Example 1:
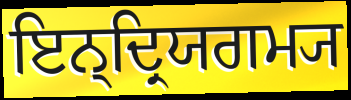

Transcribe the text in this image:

ਇਨ੍ਦ੍ਰਿਯਗਮ੍ਯ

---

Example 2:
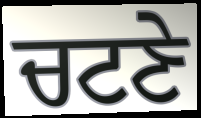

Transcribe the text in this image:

ਚਟਣੇ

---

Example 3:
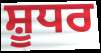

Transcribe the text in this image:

ਸ਼ੂਧਰ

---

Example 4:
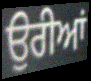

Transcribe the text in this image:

ਉਰੀਆਂ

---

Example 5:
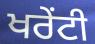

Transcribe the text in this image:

ਖਰੇਂਟੀ